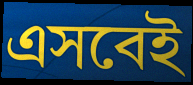
এসবেই